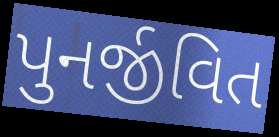
પુનર્જીવિત